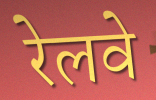
रेलवे